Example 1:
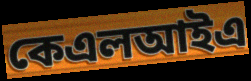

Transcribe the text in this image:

কেএলআইএ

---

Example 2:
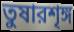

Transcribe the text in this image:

তুষারশৃঙ্গ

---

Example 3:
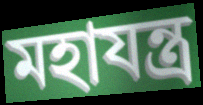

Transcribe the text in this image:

মহাযন্ত্র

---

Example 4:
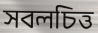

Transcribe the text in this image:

সবলচিত্ত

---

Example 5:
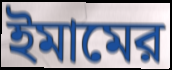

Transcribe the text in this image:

ইমামের